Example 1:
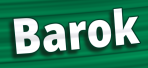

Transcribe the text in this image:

Barok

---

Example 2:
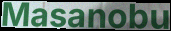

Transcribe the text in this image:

Masanobu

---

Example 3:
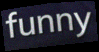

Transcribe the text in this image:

funny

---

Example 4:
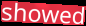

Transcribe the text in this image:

showed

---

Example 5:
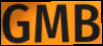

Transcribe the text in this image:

GMB